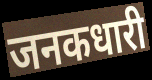
जनकधारी